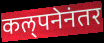
कल्पनेनंतर